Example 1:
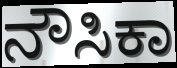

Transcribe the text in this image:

ನೌಸಿಕಾ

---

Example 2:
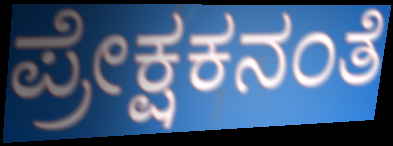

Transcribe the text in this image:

ಪ್ರೇಕ್ಷಕನಂತೆ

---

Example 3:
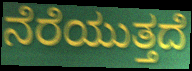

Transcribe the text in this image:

ನೆರೆಯುತ್ತದೆ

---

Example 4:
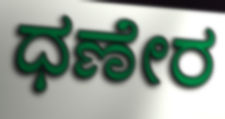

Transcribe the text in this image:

ಧಣೇರ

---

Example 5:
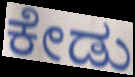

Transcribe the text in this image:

ಕೇಡು